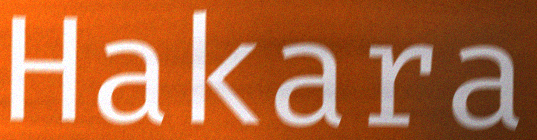
Hakara